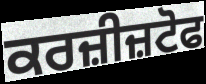
ਕਰਜ਼ੀਜ਼ਟੋਫ